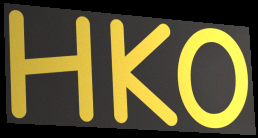
HKO